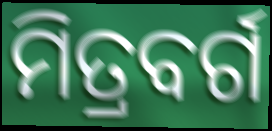
ମିତ୍ରବର୍ଗ